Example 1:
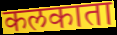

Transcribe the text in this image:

कलकाता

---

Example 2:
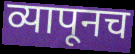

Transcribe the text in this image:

व्यापूनच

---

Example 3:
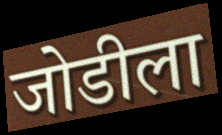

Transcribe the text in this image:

जोडीला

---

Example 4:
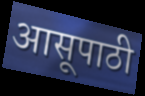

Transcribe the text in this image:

आसूपाठी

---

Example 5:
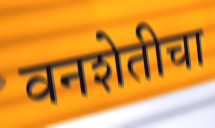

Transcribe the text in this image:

वनशेतीचा